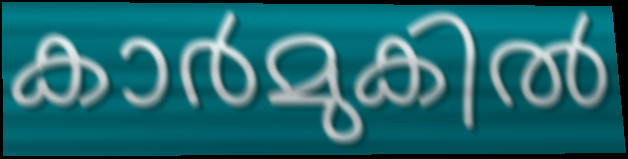
കാർമുകിൽ